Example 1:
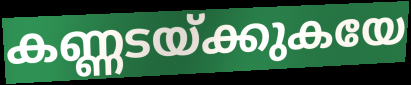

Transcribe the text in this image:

കണ്ണടയ്ക്കുകയേ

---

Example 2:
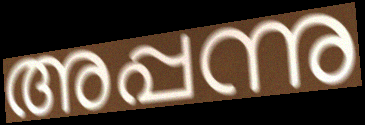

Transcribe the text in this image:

അപ്പന്നു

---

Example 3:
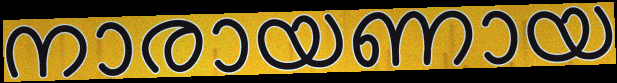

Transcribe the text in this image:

നാരായണായ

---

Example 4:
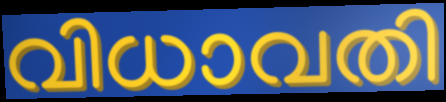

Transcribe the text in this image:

വിധാവതി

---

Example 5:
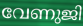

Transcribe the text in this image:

വേണുജി